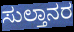
ಸುಲ್ತಾನರ